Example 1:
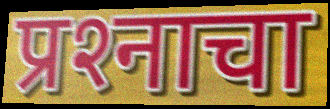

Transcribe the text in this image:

प्रश्नाचा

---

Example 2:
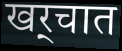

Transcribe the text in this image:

खर्चात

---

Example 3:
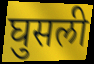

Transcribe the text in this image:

घुसली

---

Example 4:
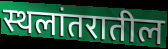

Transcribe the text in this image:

स्थलांतरातील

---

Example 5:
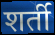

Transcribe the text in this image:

शर्ती